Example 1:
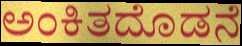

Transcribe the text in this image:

ಅಂಕಿತದೊಡನೆ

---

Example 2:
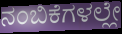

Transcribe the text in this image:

ನಂಬಿಕೆಗಳಲ್ಲೇ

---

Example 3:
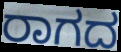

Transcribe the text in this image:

ರಾಗದ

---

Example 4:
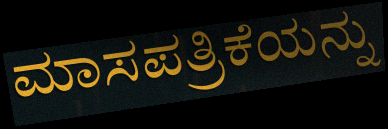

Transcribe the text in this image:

ಮಾಸಪತ್ರಿಕೆಯನ್ನು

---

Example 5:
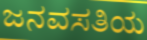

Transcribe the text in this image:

ಜನವಸತಿಯ